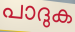
പാദുക